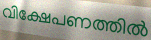
വിക്ഷേപണത്തിൽ